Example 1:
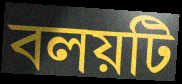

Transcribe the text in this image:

বলয়টি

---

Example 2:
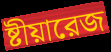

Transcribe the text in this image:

ষ্টীয়ারেজ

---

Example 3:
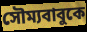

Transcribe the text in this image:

সৌম্যবাবুকে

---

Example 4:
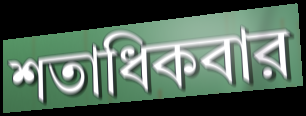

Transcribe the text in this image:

শতাধিকবার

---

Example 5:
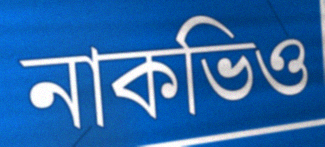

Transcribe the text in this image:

নাকভিও